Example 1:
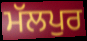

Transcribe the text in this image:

ਮੱਲਪੁਰ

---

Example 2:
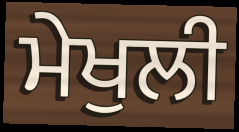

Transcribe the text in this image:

ਮੇਖੁਲੀ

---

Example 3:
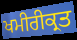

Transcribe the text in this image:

ਖਮੀਰੀਕ੍ਰਤ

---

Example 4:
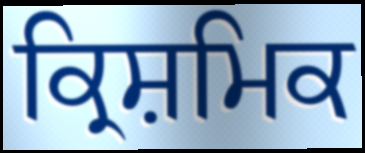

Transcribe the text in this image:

ਕ੍ਰਿਸ਼ਮਿਕ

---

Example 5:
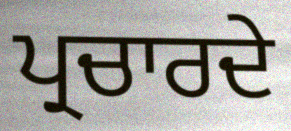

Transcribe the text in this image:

ਪ੍ਰਚਾਰਦੇ